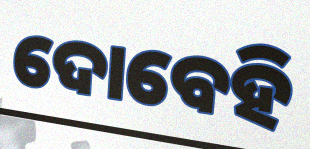
ଦୋବେହି